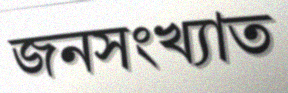
জনসংখ্যাত